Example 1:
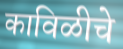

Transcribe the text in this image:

काविळीचे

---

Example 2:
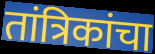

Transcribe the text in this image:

तांत्रिकांचा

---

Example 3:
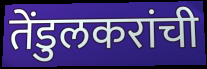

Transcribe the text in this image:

तेंडुलकरांची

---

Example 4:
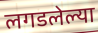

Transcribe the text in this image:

लगडलेल्या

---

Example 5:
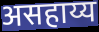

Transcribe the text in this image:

असहाय्य